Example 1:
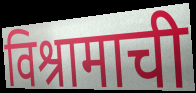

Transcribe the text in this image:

विश्रामाची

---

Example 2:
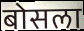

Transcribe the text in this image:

बोसला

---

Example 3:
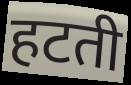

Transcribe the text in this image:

हटती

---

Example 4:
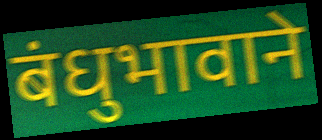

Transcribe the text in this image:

बंधुभावाने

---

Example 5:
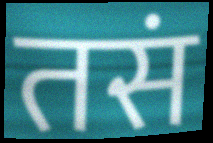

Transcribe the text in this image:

तसं